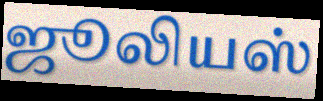
ஜூலியஸ்